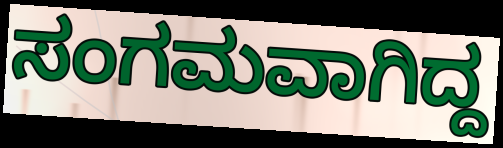
ಸಂಗಮವಾಗಿದ್ದ